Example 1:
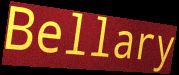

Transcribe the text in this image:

Bellary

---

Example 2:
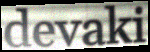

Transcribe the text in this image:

devaki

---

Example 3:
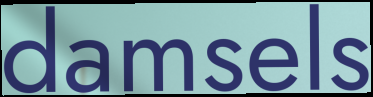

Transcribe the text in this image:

damsels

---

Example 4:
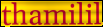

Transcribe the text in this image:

thamilil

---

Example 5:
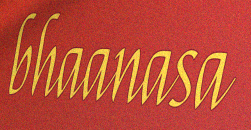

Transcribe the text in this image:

bhaanasa